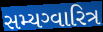
સમ્યગ્વારિત્ર